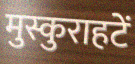
मुस्कुराहटें